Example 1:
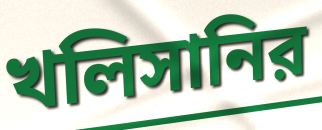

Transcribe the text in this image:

খলিসানির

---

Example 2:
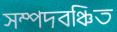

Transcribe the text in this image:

সম্পদবঞ্চিত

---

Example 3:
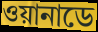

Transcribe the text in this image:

ওয়ানাডে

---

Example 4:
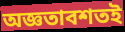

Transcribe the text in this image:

অজ্ঞতাবশতই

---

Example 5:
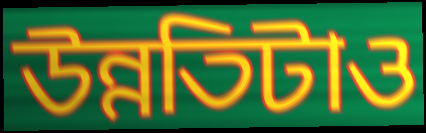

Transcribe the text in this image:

উন্নতিটাও